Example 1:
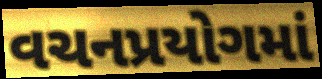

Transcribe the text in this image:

વચનપ્રયોગમાં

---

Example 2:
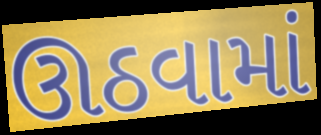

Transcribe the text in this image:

ઊઠવામાં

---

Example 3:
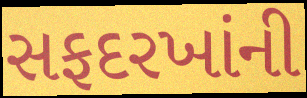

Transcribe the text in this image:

સફદરખાંની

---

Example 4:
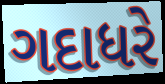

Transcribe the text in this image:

ગદાધરે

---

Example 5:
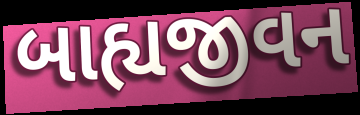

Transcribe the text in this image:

બાહ્યજીવન